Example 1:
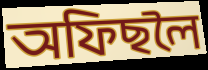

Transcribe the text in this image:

অফিছলৈ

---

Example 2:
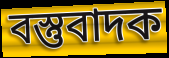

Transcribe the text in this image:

বস্তুবাদক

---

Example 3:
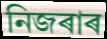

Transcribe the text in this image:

নিজৰাৰ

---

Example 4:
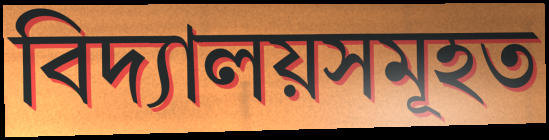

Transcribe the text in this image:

বিদ্যালয়সমূহত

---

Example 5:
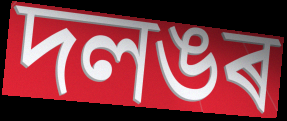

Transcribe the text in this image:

দলঙৰ